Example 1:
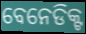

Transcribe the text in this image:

ବେନେଡିକ୍ଟ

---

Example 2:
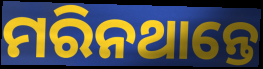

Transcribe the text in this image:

ମରିନଥାନ୍ତେ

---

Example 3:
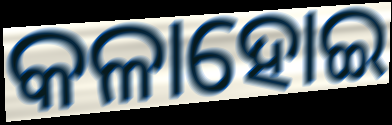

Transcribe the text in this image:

କଳାହୋଇ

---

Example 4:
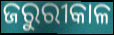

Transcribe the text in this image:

ଜରୁରୀକାଳ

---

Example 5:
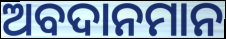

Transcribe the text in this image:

ଅବଦାନମାନ